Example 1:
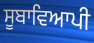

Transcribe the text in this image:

ਸੂਬਾਵਿਆਪੀ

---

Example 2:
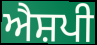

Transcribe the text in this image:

ਐਸ਼ਪੀ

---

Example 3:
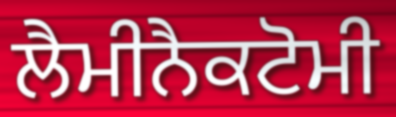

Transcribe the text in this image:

ਲੈਮੀਨੈਕਟੋਮੀ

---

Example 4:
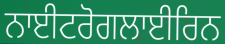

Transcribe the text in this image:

ਨਾਈਟਰੋਗਲਾਈਰਿਨ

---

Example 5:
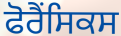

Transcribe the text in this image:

ਫੋਰੈਂਸਿਕਸ